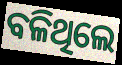
ବଳିଥିଲେ